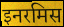
इनरमिस